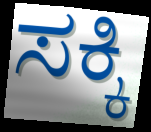
ಸಕ್ಕಿ